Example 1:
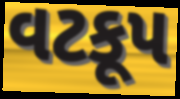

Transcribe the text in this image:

વટકૂપ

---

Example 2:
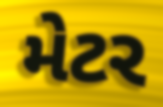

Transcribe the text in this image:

મેટર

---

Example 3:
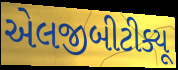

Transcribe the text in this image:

એલજીબીટીક્યૂ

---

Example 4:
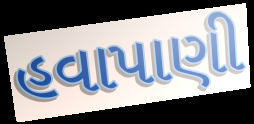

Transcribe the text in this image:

હવાપાણી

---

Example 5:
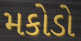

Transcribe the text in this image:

મકોડો